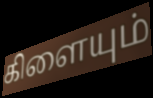
கிளையும்